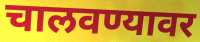
चालवण्यावर